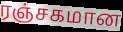
ரஞ்சகமான